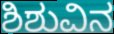
ಶಿಶುವಿನ